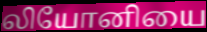
லியோனியை